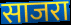
साजरा